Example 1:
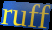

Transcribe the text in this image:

ruff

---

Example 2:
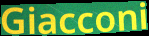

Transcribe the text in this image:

Giacconi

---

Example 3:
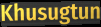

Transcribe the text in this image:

Khusugtun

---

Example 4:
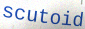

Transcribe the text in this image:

scutoid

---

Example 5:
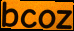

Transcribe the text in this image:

bcoz